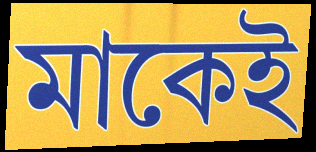
মাকেই